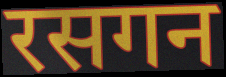
रसगन